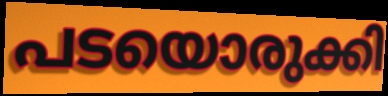
പടയൊരുക്കി